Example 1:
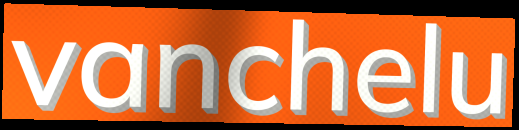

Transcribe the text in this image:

vanchelu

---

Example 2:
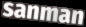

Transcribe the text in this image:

sanman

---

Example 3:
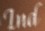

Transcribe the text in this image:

Ind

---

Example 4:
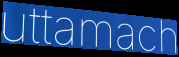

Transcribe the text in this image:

uttamach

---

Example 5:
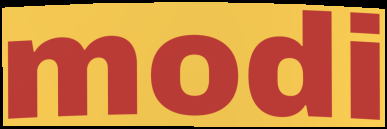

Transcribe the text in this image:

modi